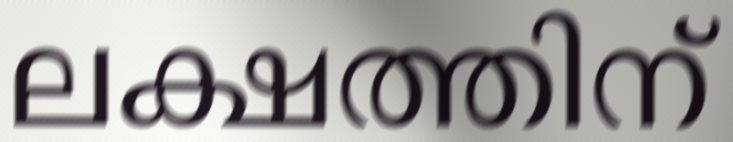
ലക്ഷത്തിന്